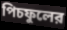
পিচফুলের